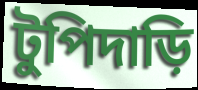
টুপিদাড়ি